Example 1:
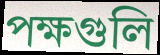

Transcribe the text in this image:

পক্ষগুলি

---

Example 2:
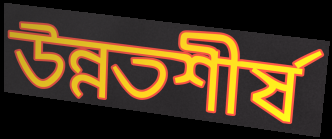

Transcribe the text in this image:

উন্নতশীর্ষ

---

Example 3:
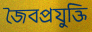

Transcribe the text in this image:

জৈবপ্রযুক্তি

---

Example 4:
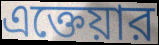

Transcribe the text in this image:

এক্তেয়ার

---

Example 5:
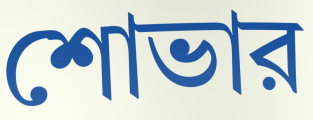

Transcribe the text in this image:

শোভার